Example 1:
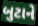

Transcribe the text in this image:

બુટાને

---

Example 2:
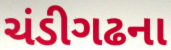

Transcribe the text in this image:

ચંડીગઢના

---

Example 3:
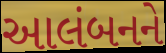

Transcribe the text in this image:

આલંબનને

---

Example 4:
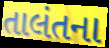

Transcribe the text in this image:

તાલંતના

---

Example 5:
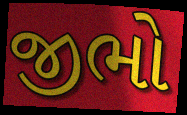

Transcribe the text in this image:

જીભો